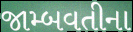
જામ્બવતીના